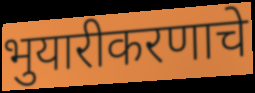
भुयारीकरणाचे